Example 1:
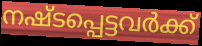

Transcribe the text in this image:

നഷ്ടപ്പെട്ടവർക്ക്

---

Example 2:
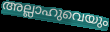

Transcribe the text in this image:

അല്ലാഹുവെയും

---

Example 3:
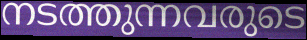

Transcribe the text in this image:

നടത്തുന്നവരുടെ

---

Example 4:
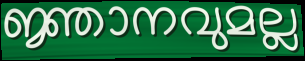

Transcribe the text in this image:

ജ്ഞാനവുമല്ല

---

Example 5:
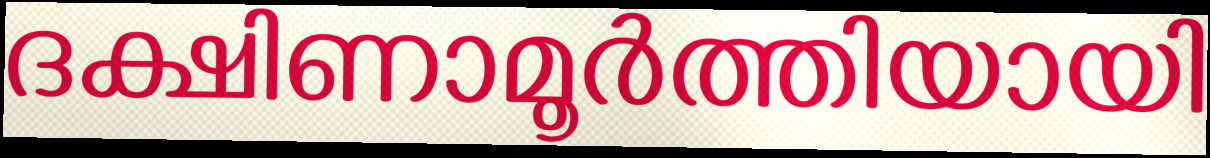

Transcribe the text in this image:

ദക്ഷിണാമൂർത്തിയായി